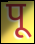
पू